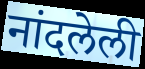
नांदलेली